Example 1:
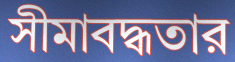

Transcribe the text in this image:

সীমাবদ্ধতার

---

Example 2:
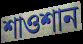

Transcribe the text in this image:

শাওশান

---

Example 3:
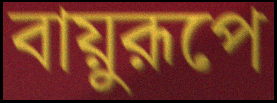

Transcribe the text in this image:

বায়ুরূপে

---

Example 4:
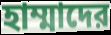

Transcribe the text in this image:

হাম্মাদের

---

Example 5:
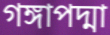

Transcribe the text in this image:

গঙ্গাপদ্মা